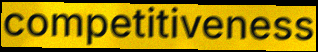
competitiveness